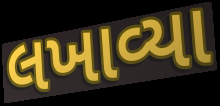
લખાવ્યા